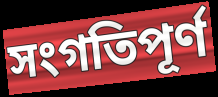
সংগতিপূৰ্ণ